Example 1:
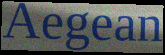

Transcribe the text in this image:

Aegean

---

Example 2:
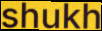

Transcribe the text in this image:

shukh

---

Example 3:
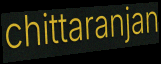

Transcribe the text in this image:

chittaranjan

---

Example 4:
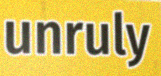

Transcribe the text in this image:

unruly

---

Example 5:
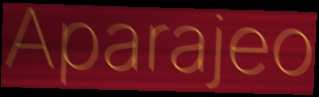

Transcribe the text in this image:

Aparajeo